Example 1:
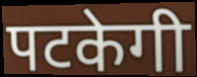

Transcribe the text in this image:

पटकेगी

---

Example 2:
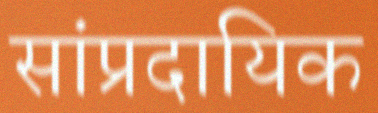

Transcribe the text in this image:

सांप्रदायिक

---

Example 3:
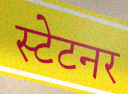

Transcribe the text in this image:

स्टेटनर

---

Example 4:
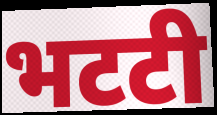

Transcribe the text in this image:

भटटी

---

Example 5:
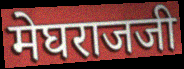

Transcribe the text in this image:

मेघराजजी